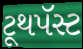
ટૂથપૅસ્ટ